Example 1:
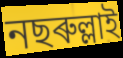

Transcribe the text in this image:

নছৰুল্লাই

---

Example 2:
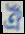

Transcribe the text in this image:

ঐঁ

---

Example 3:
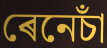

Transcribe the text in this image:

ৰেনেচাঁ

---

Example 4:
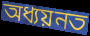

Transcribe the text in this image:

অধ্যয়নত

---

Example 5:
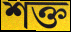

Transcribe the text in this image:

শক্ত